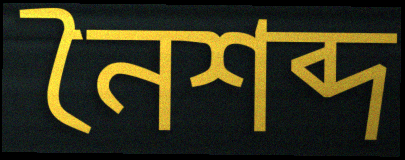
নৈশব্দ